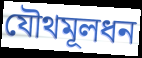
যৌথমূলধন